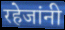
रहेजांनी